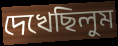
দেখেছিলুম